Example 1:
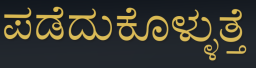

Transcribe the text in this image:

ಪಡೆದುಕೊಳ್ಳುತ್ತೆ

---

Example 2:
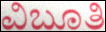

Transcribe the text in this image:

ವಿಬೂತಿ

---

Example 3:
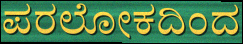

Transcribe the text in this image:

ಪರಲೋಕದಿಂದ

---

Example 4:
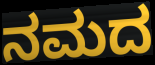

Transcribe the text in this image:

ನಮದ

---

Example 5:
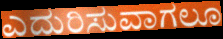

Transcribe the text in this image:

ಎದುರಿಸುವಾಗಲೂ